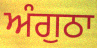
ਅੰਗੁਠਾ